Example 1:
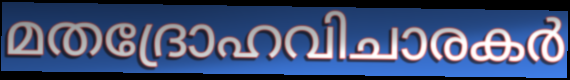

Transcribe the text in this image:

മതദ്രോഹവിചാരകർ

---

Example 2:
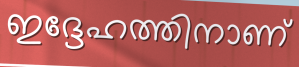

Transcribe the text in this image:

ഇദ്ദേഹത്തിനാണ്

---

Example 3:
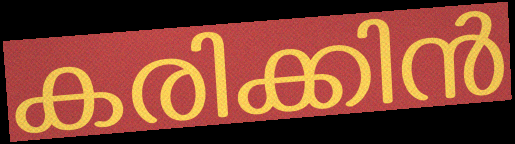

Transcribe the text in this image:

കരിക്കിൻ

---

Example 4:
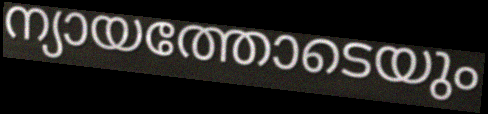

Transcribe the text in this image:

ന്യായത്തോടെയും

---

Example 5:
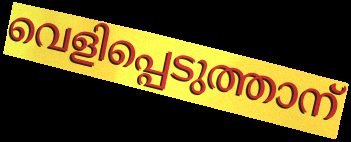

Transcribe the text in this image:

വെളിപ്പെടുത്താന്